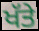
ਖੱਤੇ